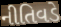
નીતિવડે